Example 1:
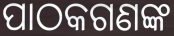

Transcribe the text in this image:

ପାଠକଗଣଙ୍କ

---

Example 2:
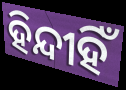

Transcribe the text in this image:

ହିନ୍ଦୀହିଁ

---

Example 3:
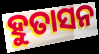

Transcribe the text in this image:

ହୁତାସନ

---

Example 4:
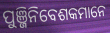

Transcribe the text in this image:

ପୁଞ୍ଜିନିବେଶକମାନେ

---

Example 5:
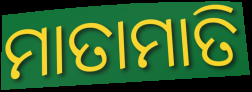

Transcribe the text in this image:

ମାତାମାତି